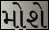
મોશે